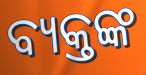
ବ୍ୟକ୍ତଙ୍କ